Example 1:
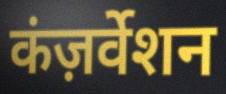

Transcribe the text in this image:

कंज़र्वेशन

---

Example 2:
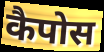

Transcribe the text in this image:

कैपोस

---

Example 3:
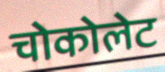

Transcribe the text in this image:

चोकोलेट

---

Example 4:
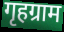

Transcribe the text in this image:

गृहग्राम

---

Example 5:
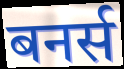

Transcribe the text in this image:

बनर्स